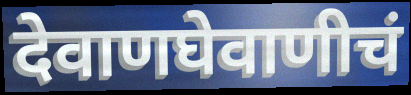
देवाणघेवाणीचं